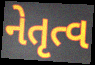
નેતૃત્વ